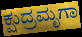
ಕ್ಷುದ್ರಮೃಗಾ